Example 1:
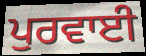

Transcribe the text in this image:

ਪੁਰਵਾਈ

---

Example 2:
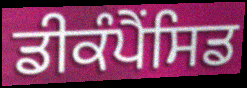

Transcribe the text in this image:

ਡੀਕੰਪੈਂਸਿਡ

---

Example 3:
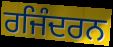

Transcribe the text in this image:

ਰਜਿੰਦਰਨ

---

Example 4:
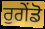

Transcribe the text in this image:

ਰੁਗੇਂਡੋ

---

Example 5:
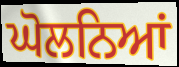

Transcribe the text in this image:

ਘੋਲਨਿਆਂ